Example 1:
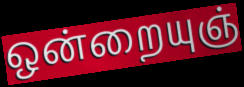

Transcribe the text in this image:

ஒன்றையுஞ்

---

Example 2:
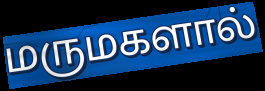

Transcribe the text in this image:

மருமகளால்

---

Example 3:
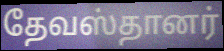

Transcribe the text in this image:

தேவஸ்தானர்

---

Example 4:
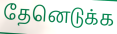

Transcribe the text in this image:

தேனெடுக்க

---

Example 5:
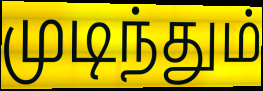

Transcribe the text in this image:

முடிந்தும்